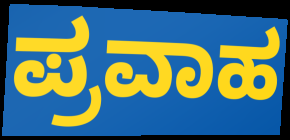
ಪ್ರವಾಹ